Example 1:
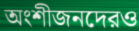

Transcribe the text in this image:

অংশীজনদেরও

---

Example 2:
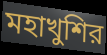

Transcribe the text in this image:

মহাখুশির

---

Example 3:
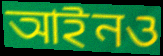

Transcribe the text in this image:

আইনও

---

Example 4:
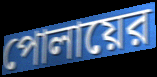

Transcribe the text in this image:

পোলায়ের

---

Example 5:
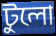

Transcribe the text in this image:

টুলো